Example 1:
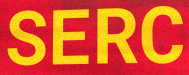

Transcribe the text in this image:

SERC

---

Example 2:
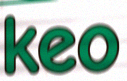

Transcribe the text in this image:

keo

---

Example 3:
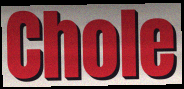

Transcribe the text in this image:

Chole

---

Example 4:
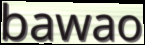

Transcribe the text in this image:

bawao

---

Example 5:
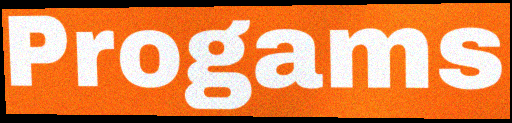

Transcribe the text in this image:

Progams